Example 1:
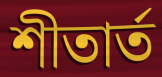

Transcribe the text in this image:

শীতার্ত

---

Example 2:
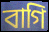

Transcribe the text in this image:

বাগি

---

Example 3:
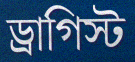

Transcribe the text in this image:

ড্রাগিস্ট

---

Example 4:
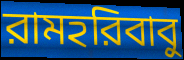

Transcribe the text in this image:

রামহরিবাবু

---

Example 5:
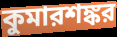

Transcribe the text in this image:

কুমারশঙ্কর